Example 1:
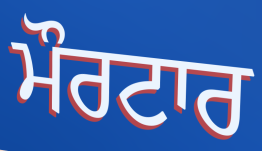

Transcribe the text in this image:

ਮੌਰਟਾਰ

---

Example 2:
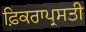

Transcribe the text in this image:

ਫ਼ਿਕਰਾਪ੍ਰਸਤੀ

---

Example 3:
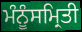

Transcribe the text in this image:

ਮੰਨੂੰਸਮ੍ਰਿਤੀ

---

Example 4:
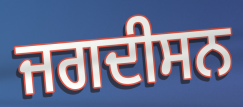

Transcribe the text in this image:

ਜਗਦੀਸਨ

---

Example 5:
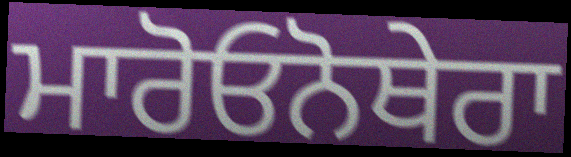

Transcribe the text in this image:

ਮਾਰੋਓਨੋਥੇਰਾ